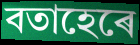
বতাহেৰে